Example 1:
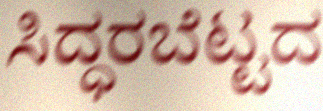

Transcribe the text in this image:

ಸಿದ್ಧರಬೆಟ್ಟದ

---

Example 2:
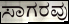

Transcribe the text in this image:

ಸಾಗರವು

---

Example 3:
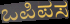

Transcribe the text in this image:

ಒಪಿಪಸ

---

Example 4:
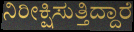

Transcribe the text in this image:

ನಿರೀಕ್ಷಿಸುತ್ತಿದ್ದಾರೆ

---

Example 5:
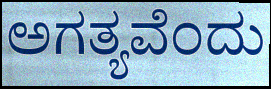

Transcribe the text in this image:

ಅಗತ್ಯವೆಂದು